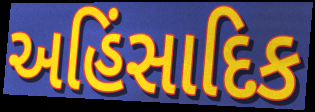
અહિંસાદિક